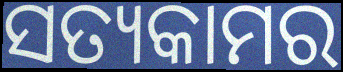
ସତ୍ୟକାମର